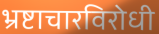
भ्रष्टाचारविरोधी